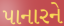
પાનારને